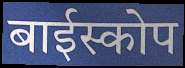
बाईस्कोप